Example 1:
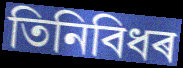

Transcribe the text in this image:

তিনিবিধৰ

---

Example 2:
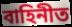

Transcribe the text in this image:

বাহিনীত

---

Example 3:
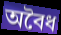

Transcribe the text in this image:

অবৈধ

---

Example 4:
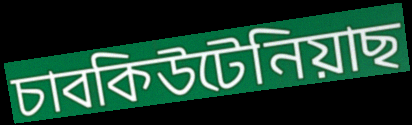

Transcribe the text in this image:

চাবকিউটেনিয়াছ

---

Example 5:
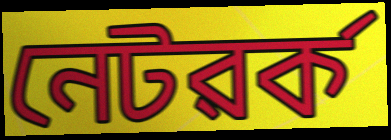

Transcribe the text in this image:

নেটৱৰ্ক